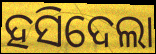
ହସିଦେଲା